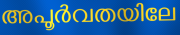
അപൂർവതയിലേ